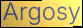
Argosy